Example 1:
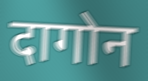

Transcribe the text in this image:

दागोन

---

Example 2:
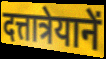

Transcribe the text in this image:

दत्तात्रेयानें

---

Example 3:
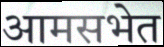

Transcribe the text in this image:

आमसभेत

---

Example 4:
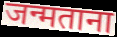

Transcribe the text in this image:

जन्मताना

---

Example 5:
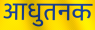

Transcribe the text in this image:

आधुतनक